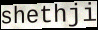
shethji